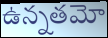
ఉన్నతమో